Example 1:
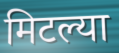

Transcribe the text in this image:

मिटल्या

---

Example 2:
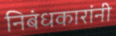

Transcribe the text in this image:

निबंधकारांनी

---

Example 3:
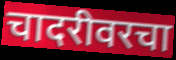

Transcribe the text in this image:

चादरीवरचा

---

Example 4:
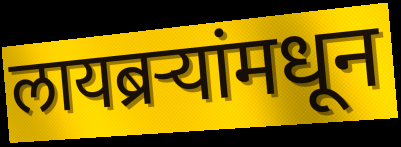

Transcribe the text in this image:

लायब्रऱ्यांमधून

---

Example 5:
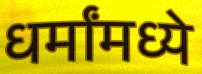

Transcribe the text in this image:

धर्मांमध्ये